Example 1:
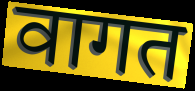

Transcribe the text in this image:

वागत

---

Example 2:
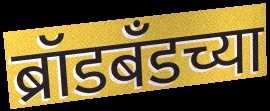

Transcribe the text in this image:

ब्रॉडबँडच्या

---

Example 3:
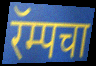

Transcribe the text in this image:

रॅम्पचा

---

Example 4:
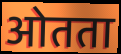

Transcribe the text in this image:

ओतता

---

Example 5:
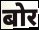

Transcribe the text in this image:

बोर